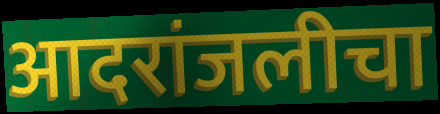
आदरांजलीचा